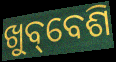
ଖୁବ୍‌ବେଶି